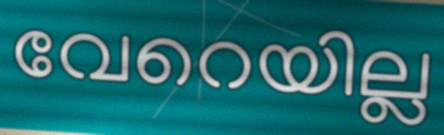
വേറെയില്ല